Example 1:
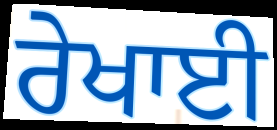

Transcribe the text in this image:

ਰੇਖਾਈ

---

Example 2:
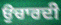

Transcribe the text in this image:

ਉਚਾਰਦੀ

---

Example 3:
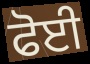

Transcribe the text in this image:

ਫੋਈ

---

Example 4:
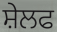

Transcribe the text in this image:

ਸ਼ੇਲਫ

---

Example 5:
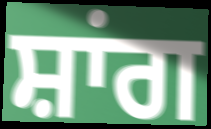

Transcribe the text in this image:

ਸ਼ਾਂਗ